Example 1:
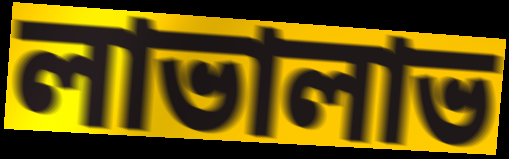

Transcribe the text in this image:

লাভালাভ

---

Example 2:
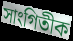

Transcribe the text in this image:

সাংগিতীক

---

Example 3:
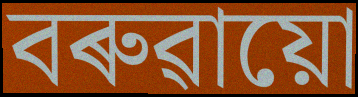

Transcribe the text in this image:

বৰুৱায়ো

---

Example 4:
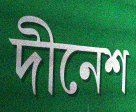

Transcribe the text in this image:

দীনেশ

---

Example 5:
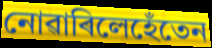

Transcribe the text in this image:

নোৱাৰিলেহেঁতেন